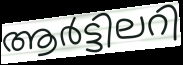
ആർട്ടിലറി